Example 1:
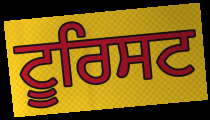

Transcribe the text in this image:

ਟੂਰਿਸਟ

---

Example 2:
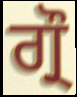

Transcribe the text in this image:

ਗ੍ਰੌ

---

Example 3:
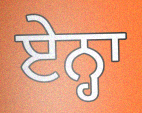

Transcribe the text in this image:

ਏਨ੍ਹ੍ਹਾ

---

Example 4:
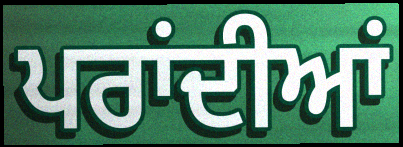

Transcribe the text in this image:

ਪਰਾਂਦੀਆਂ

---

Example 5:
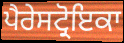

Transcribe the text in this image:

ਪੈਰੇਸਟ੍ਰੋਇਕਾ